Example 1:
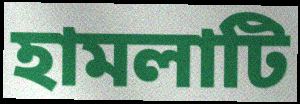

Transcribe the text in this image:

হামলাটি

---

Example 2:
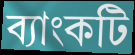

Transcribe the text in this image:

ব্যাংকটি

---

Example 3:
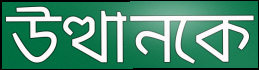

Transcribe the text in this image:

উত্থানকে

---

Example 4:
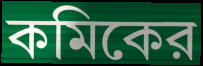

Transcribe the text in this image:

কমিকের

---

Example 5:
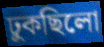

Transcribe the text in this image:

ঢুকছিলো